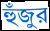
হুঁজুর